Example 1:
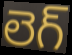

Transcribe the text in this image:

లెగ్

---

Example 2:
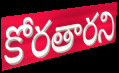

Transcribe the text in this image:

కోరతారని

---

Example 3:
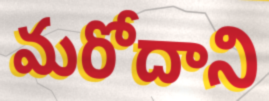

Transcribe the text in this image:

మరోదాని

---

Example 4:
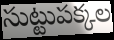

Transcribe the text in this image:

సుట్టుపక్కల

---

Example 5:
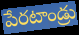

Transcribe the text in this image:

పేరటాండ్రు